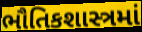
ભૌતિકશાસ્ત્રમાં